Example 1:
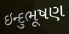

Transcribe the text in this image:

ઇન્દુભૂષણ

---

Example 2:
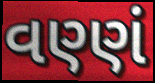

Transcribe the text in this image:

વણ્ણં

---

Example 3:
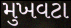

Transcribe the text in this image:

મુખવટા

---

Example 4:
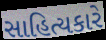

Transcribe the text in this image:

સાહિત્યકારે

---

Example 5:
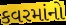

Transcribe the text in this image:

કવરમાંનો